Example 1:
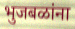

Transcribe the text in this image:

भुजबळांना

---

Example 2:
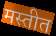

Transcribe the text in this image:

मस्तीत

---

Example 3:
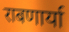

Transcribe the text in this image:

राबणार्या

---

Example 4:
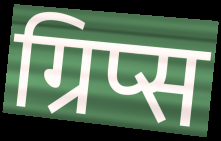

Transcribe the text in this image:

ग्रिप्स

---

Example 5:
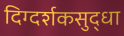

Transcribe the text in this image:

दिग्दर्शकसुद्धा